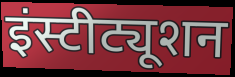
इंस्टीट्यूशन